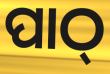
ପାଠ୍